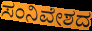
ಸಂನಿವೇಶದ